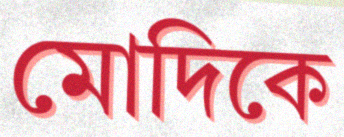
মোদিকে